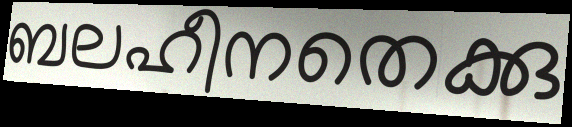
ബലഹീനതെക്കു